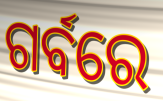
ଗର୍ବରେ